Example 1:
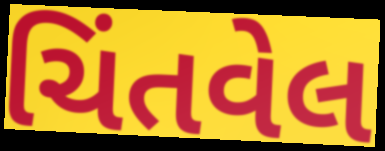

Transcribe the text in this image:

ચિંતવેલ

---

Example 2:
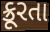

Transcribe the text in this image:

ક્રૂરતા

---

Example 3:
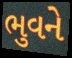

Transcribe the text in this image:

ભુવને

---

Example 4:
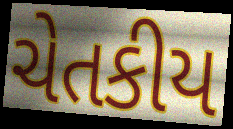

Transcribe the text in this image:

ચેતકીય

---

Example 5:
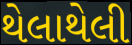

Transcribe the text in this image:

થેલાથેલી